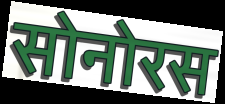
सोनोरस